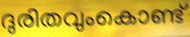
ദുരിതവുംകൊണ്ട്